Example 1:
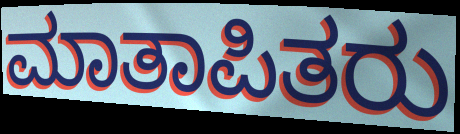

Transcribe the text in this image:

ಮಾತಾಪಿತರು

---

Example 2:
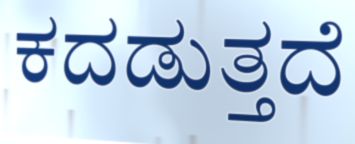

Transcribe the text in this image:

ಕದಡುತ್ತದೆ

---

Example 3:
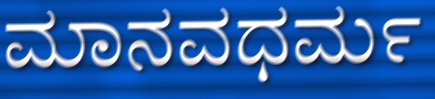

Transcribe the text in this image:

ಮಾನವಧರ್ಮ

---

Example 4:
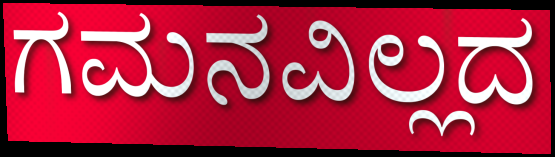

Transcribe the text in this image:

ಗಮನವಿಲ್ಲದ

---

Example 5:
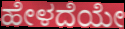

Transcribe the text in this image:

ಹೇಳದೆಯೇ